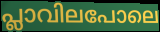
പ്ലാവിലപോലെ